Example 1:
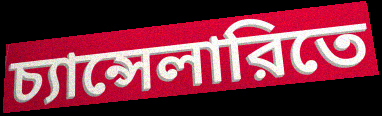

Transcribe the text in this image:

চ্যান্সেলারিতে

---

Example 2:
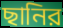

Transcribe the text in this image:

ছানির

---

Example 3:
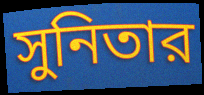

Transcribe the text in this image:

সুনিতার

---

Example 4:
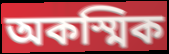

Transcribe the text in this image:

অকস্মিক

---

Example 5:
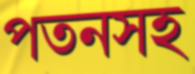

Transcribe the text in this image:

পতনসহ